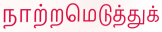
நாற்றமெடுத்துக்